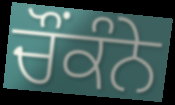
ਚੌਂਕੰਨੇ